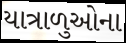
યાત્રાળુઓના